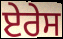
ਏਰੇਸ